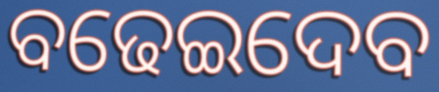
ବଢେଇଦେବ